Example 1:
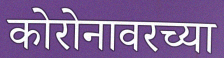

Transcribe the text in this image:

कोरोनावरच्या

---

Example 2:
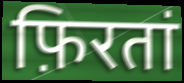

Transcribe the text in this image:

फ़िरतां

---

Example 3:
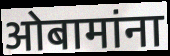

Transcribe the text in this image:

ओबामांना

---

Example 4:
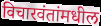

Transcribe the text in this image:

विचारवंतांमधील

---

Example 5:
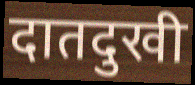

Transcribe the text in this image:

दातदुखी